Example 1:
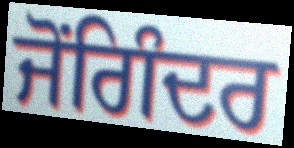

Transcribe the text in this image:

ਜੋਂਗਿੰਦਰ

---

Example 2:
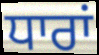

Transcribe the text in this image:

ਧਾਰਾਂ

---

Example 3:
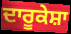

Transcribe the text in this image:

ਦਾਰੂਕੇਸ਼ਾ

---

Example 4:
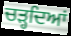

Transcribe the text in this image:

ਚੜ੍ਹਦਿਆਂ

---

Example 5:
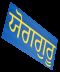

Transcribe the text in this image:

ਯੋਗਗੁਰੂ